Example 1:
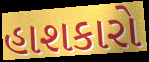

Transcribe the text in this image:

હાશકારો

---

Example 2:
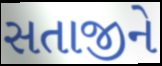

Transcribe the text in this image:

સતાજીને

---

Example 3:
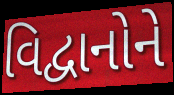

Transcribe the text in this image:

વિદ્વાનોને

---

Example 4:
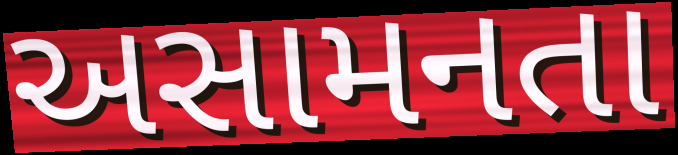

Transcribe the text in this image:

અસામનતા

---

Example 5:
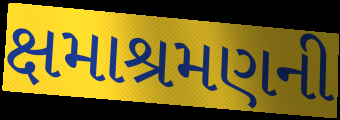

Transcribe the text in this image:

ક્ષમાશ્રમણની